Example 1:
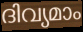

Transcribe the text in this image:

ദിവ്യമാം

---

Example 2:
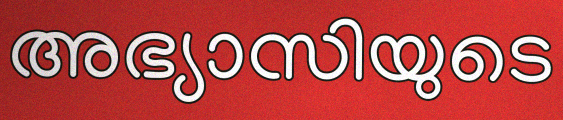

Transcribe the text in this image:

അഭ്യാസിയുടെ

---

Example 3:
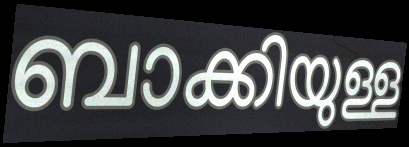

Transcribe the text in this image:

ബാക്കിയുള്ള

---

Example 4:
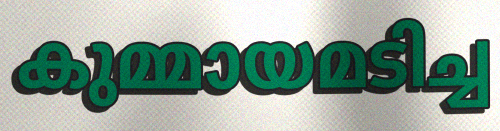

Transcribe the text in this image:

കുമ്മായമടിച്ച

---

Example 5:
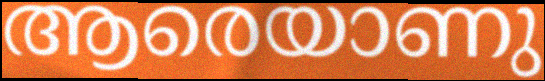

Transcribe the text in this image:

ആരെയാണു